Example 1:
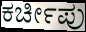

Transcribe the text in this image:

ಕರ್ಚೀಪು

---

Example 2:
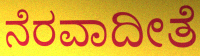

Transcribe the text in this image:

ನೆರವಾದೀತೆ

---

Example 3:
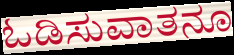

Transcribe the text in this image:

ಓಡಿಸುವಾತನೂ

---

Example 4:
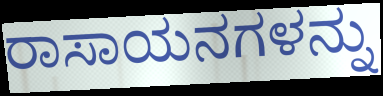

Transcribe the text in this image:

ರಾಸಾಯನಗಳನ್ನು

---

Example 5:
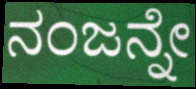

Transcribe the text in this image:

ನಂಜನ್ನೇ